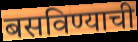
बसविण्याची